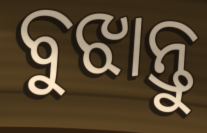
ବୁଝାନ୍ତୁ